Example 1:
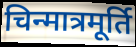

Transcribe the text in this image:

चिन्मात्रमूर्ति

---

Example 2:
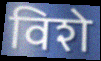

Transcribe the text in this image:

विशे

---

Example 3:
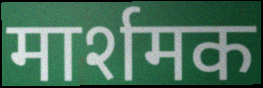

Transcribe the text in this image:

मार्शमक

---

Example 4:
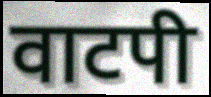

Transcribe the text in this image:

वाटपी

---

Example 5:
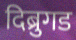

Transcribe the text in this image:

दिब्रुगड